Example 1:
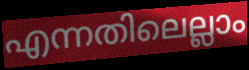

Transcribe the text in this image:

എന്നതിലെല്ലാം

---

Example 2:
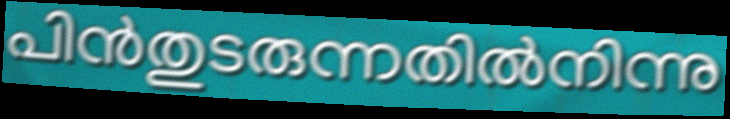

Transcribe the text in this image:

പിൻതുടരുന്നതിൽനിന്നു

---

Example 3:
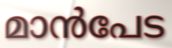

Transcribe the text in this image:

മാൻപേട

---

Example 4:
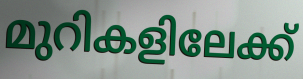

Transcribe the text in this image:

മുറികളിലേക്ക്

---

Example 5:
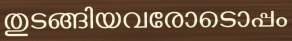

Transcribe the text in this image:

തുടങ്ങിയവരോടൊപ്പം